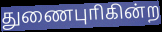
துணைபுரிகின்ற